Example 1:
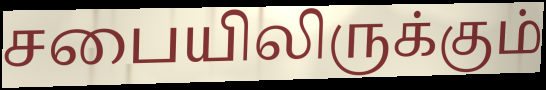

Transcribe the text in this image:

சபையிலிருக்கும்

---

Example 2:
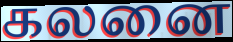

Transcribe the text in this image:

கலனை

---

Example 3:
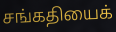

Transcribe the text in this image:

சங்கதியைக்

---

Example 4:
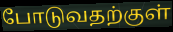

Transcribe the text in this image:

போடுவதற்குள்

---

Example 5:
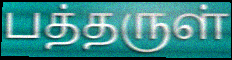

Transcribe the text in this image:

பத்தருள்